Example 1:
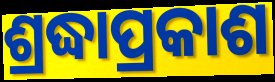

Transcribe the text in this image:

ଶ୍ରଦ୍ଧାପ୍ରକାଶ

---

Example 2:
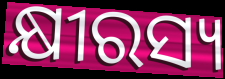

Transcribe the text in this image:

କ୍ଷୀରସ୍ୟ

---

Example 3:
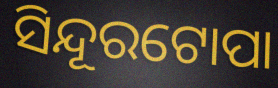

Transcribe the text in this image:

ସିନ୍ଦୂରଟୋପା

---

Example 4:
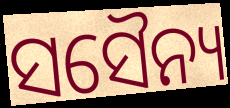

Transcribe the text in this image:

ସସୈନ୍ୟ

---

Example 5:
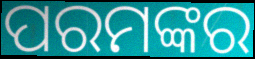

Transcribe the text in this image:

ପରମଙ୍କର